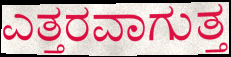
ಎತ್ತರವಾಗುತ್ತ